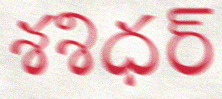
శశిధర్